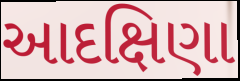
આદક્ષિણા